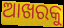
ଆଖରକୁ